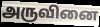
அருவினை